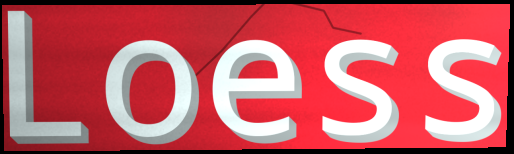
Loess